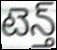
టెన్త్